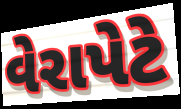
વેરાપેટે